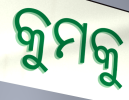
କୁମକୁ